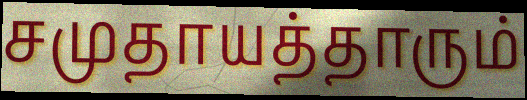
சமுதாயத்தாரும்